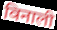
विनाली